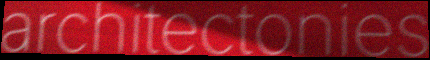
architectonies